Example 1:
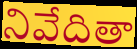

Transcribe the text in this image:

నివేదితా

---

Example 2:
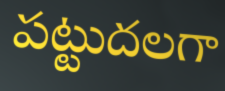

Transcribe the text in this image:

పట్టుదలగా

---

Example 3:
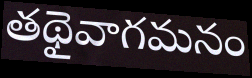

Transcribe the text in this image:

తథైవాగమనం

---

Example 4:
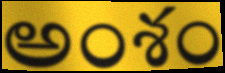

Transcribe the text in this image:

అంశం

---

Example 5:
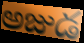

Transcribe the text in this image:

అజుడ